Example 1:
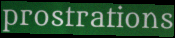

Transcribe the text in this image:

prostrations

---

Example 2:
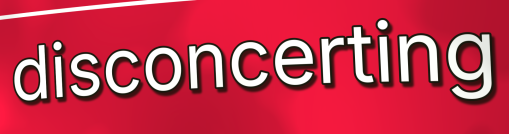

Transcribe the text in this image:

disconcerting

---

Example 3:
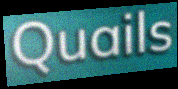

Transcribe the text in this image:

Quails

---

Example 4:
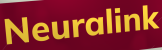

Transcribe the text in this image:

Neuralink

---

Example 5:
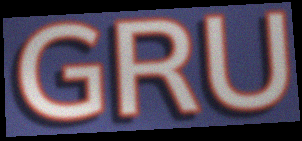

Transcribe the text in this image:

GRU